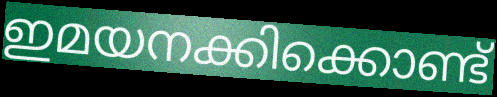
ഇമയനക്കിക്കൊണ്ട്